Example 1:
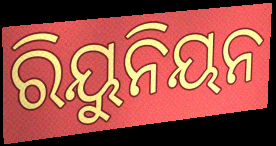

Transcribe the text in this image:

ରିୟୁନିୟନ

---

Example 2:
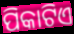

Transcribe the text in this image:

ପିକାଟିଏ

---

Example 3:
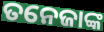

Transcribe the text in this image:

ତନେଜାଙ୍କ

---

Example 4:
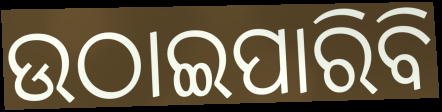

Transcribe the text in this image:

ଉଠାଇପାରିବି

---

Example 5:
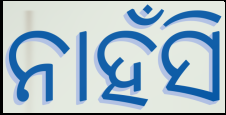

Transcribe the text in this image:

ନାହଁସି